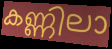
കണ്ണിലാ